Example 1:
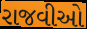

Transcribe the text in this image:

રાજવીઓ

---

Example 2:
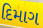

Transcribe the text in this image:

દિમાગ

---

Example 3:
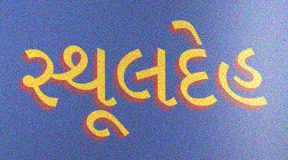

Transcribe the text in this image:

સ્થૂલદેહ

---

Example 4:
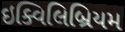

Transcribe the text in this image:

ઇક્વિલિબ્રિયમ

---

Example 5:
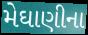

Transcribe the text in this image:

મેઘાણીના